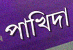
পাখিদা